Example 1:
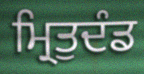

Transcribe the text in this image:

ਮ੍ਰਿਤੁਦੰਡ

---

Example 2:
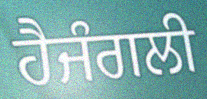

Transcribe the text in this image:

ਹੈਜੰਗਲੀ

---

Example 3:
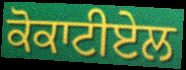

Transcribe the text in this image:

ਕੋਕਾਟੀਏਲ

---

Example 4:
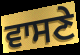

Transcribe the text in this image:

ਵਾਸਣੇ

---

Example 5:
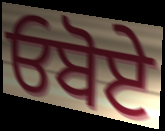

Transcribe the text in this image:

ਓਬੋਏ